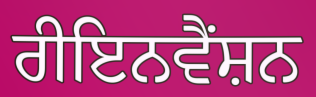
ਰੀਇਨਵੈਂਸ਼ਨ